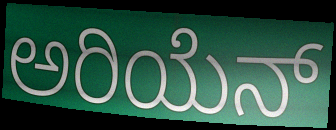
ಅರಿಯೆನ್